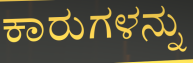
ಕಾರುಗಳನ್ನು